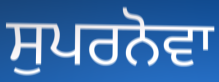
ਸੁਪਰਨੋਵਾ